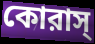
কোরাস্